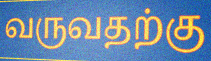
வருவதற்கு